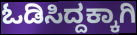
ಓಡಿಸಿದ್ದಕ್ಕಾಗಿ